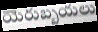
యెరుబ్బయలు